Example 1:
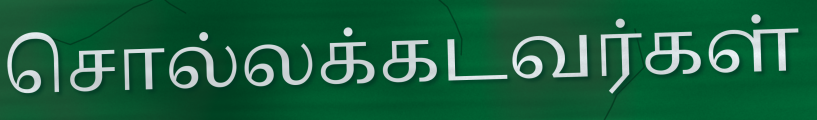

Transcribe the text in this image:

சொல்லக்கடவர்கள்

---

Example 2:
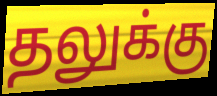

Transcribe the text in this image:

தலுக்கு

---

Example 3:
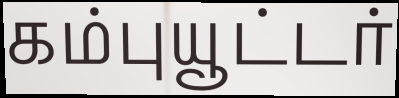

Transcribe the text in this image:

கம்புயூட்டர்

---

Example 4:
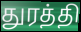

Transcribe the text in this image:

துரத்தி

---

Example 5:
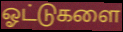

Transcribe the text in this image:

ஓட்டுகளை